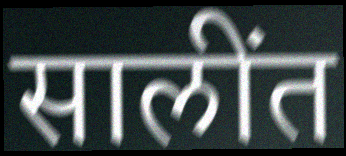
सालींत